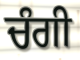
ਚੰਗੀ